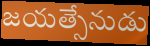
జయత్సేనుడు